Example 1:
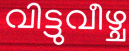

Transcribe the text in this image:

വിട്ടുവീഴ്ച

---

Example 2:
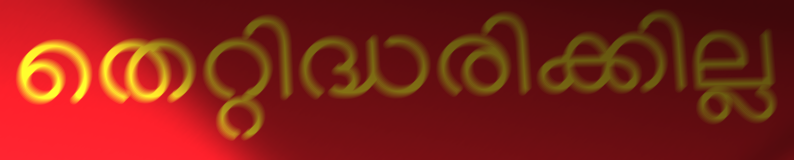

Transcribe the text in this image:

തെറ്റിദ്ധരിക്കില്ല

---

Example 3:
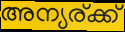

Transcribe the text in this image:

അന്യര്ക്ക്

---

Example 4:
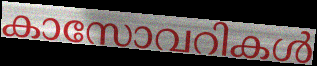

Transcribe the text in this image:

കാസോവറികൾ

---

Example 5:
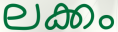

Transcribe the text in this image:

ലക്കം